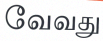
வேவது